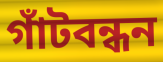
গাঁটবন্ধন